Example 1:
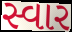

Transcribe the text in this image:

સ્વાર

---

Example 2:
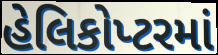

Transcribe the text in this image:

હેલિકોપ્ટરમાં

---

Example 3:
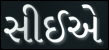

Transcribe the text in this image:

સીઈએ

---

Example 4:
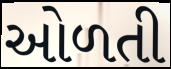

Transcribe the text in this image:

ઓળતી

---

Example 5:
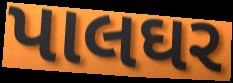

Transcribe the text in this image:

પાલઘર